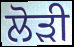
ਲੋੜੀ